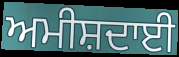
ਅਮੀਸ਼ਦਾਈ